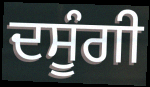
ਦਸੂੰਗੀ